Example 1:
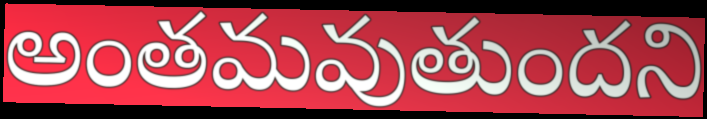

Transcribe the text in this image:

అంతమవుతుందని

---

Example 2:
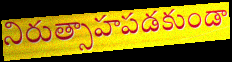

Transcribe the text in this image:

నిరుత్సాహపడకుండా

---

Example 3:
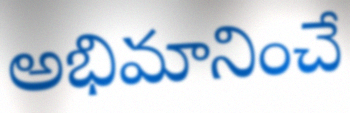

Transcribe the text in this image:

అభిమానించే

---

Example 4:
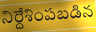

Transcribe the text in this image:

నిర్దేశింపబడిన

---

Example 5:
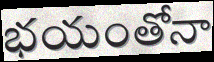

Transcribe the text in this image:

భయంతోనా